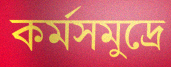
কর্মসমুদ্রে